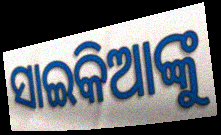
ସାଇକିଆଙ୍କୁ